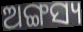
ଅଙ୍ଗସ୍ୟ